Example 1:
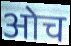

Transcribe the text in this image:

ओच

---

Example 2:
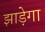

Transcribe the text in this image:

झाड़ेगा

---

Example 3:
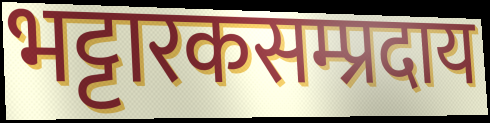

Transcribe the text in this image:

भट्टारकसम्प्रदाय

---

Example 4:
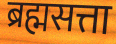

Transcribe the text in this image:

ब्रह्मसत्ता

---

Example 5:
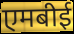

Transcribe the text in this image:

एमबीई